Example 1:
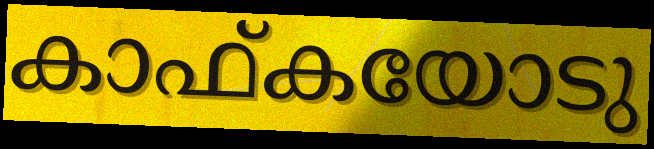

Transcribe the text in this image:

കാഫ്കയോടു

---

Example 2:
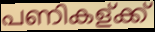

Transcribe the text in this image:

പണികള്ക്ക്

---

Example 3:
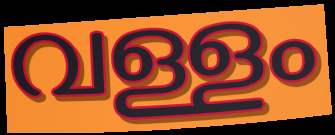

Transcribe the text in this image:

വള്ളം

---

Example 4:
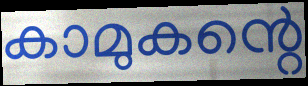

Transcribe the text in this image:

കാമുകന്റെ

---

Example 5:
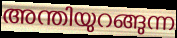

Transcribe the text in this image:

അന്തിയുറങ്ങുന്ന